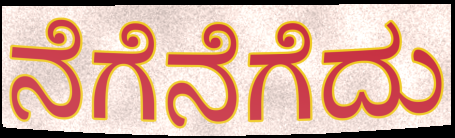
ನೆಗೆನೆಗೆದು